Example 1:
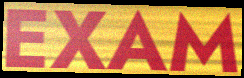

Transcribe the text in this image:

EXAM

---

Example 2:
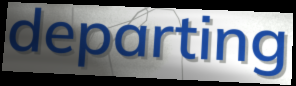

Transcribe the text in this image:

departing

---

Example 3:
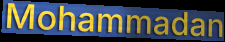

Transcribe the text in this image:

Mohammadan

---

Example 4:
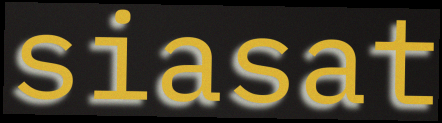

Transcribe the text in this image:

siasat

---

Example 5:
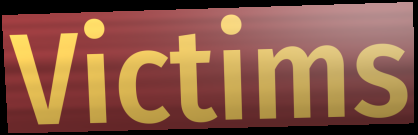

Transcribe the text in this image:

Victims